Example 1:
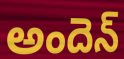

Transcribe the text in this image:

అందెన్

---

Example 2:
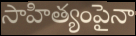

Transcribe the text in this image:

సాహిత్యంపైనా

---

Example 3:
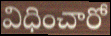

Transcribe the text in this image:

విధించారో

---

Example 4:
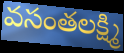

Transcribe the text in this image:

వసంతలక్ష్మి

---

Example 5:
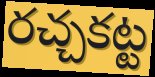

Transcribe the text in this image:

రచ్చకట్ట